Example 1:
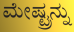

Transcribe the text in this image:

ಮೇಷ್ಟ್ರನ್ನು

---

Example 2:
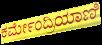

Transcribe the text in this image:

ಕರ್ಮೇಂದ್ರಿಯಾಣಿ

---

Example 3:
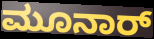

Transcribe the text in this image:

ಮೂನಾರ್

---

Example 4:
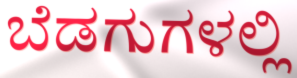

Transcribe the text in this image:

ಬೆಡಗುಗಳಲ್ಲಿ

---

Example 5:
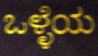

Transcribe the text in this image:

ಒಳ್ಳೆಯ